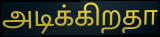
அடிக்கிறதா